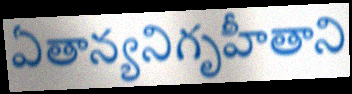
ఏతాన్యనిగృహీతాని